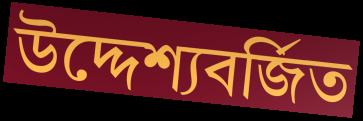
উদ্দেশ্যবর্জিত